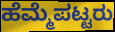
ಹೆಮ್ಮೆಪಟ್ಟರು